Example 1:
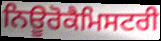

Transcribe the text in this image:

ਨਿਊਰੋਕੈਮਿਸਟਰੀ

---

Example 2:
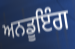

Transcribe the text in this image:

ਅਨਡੂਇੰਗ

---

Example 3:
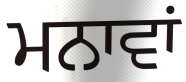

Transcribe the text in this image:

ਮਨਾਵਾਂ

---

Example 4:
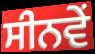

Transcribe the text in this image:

ਸੀਨਵੇਂ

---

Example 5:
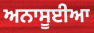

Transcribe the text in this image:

ਅਨਾਸੂਈਆ